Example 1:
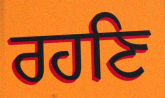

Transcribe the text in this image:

ਰਹਣਿ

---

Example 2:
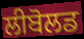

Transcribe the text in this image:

ਲੀਬੋਲਡ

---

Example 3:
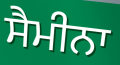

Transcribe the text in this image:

ਸੈਮੀਨਾ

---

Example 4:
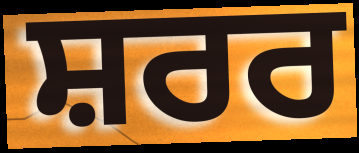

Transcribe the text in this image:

ਸ਼ਰਰ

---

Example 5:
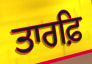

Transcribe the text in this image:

ਤਾਰਫ਼ਿ